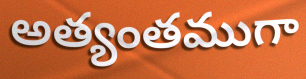
అత్యంతముగా